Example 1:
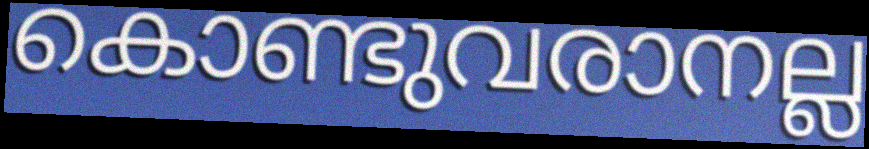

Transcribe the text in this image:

കൊണ്ടുവരാനല്ല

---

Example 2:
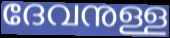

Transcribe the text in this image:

ദേവനുള്ള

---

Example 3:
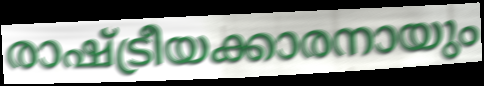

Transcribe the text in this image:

രാഷ്ട്രീയക്കാരനായും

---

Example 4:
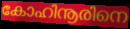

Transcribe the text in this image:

കോഹിനൂരിനെ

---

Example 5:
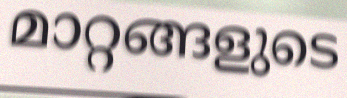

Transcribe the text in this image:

മാറ്റങ്ങളുടെ